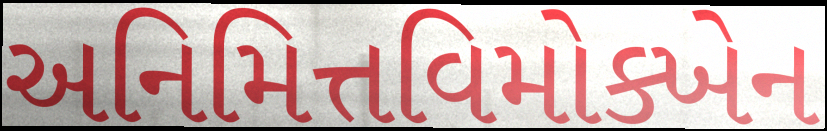
અનિમિત્તવિમોક્ખેન